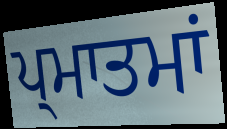
ਪ੍ਮਾਤਮਾਂ